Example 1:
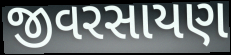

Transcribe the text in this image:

જીવરસાયણ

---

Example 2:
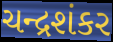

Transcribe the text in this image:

ચન્દ્રશંકર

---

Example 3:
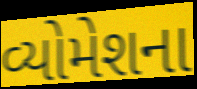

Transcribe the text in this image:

વ્યોમેશના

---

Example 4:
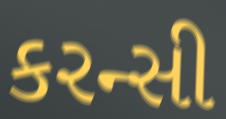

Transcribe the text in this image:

કરન્સી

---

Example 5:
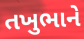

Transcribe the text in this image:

તખુભાને